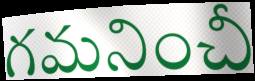
గమనించీ